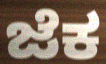
ಜೆಕ